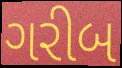
ગરીબ